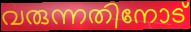
വരുന്നതിനോട്